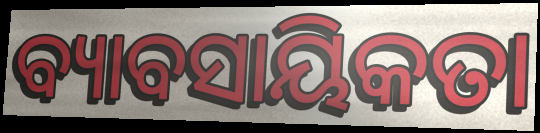
ବ୍ୟାବସାୟିକତା